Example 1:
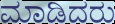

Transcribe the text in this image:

ಮಾಡಿದರು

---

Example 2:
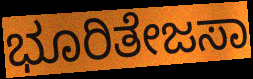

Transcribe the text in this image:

ಭೂರಿತೇಜಸಾ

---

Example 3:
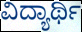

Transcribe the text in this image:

ವಿದ್ಯಾರ್ಥಿ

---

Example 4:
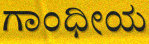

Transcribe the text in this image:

ಗಾಂಧೀಯ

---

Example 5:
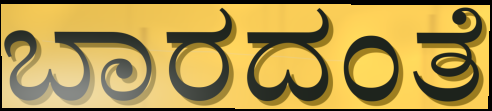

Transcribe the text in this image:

ಬಾರದಂತೆ